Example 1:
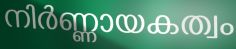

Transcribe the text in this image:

നിർണ്ണായകത്വം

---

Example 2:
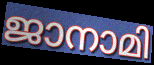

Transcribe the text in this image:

ജാനാമി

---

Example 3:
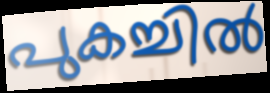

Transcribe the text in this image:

പുകച്ചിൽ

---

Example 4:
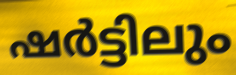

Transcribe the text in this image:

ഷർട്ടിലും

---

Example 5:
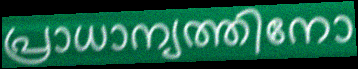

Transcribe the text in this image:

പ്രാധാന്യത്തിനോ